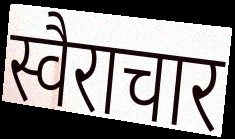
स्वैराचार